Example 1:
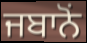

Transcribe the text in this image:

ਜਬਾਨੋਂ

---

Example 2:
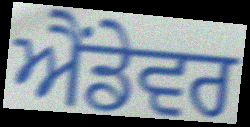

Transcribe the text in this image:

ਐਂਡੇਵਰ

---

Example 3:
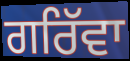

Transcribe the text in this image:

ਗਰਿੱਵਾ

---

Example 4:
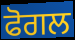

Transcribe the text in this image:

ਫੋਗਲ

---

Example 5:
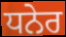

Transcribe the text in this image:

ਧਨੇਰ